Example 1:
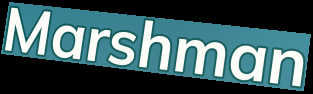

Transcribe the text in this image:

Marshman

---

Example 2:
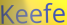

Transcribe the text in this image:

Keefe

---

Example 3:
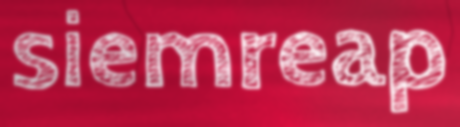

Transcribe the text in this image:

siemreap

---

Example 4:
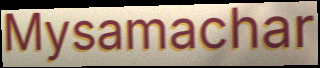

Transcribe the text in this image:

Mysamachar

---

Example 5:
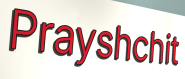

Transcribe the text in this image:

Prayshchit